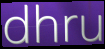
dhru